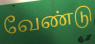
வேண்டு